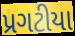
પ્રગટીયા